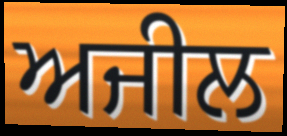
ਅਜੀਲ